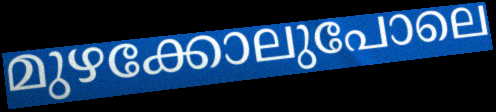
മുഴക്കോലുപോലെ